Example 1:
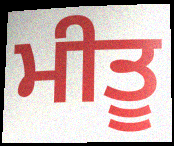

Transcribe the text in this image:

ਮੀਤੂ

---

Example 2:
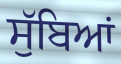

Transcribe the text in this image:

ਸੁੱਬਿਆਂ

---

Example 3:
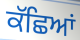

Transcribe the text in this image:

ਕੱਛਿਆਂ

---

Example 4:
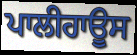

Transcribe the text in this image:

ਪਾਲੀਹਾਊਸ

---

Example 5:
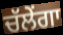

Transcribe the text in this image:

ਚੱਲੇਂਗਾ